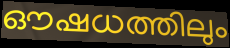
ഔഷധത്തിലും